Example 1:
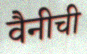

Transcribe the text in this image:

वैनीची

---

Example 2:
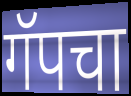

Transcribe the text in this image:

गॅपचा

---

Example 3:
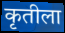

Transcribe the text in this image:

कृतीला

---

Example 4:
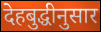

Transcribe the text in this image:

देहबुद्धीनुसार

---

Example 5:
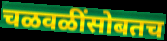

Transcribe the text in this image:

चळवळींसोबतच